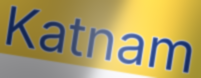
Katnam